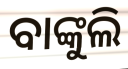
ବାଙ୍କୁଲି